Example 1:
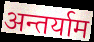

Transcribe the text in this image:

अन्तर्याम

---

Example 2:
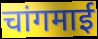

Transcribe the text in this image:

चांगमाई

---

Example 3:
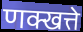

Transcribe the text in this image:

णक्खत्ते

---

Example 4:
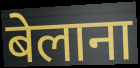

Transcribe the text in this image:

बेलाना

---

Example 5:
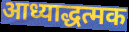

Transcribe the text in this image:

आध्याद्धत्मक